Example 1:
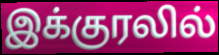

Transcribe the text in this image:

இக்குரலில்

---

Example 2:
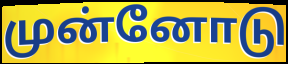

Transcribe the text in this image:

முன்னோடு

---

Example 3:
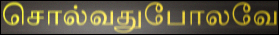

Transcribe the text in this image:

சொல்வதுபோலவே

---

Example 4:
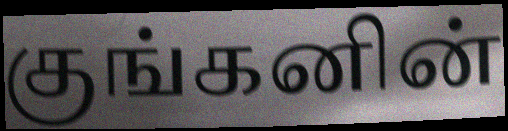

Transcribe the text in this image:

குங்கனின்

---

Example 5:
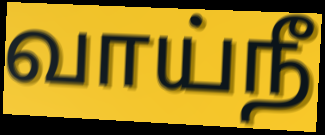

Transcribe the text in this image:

வாய்நீ